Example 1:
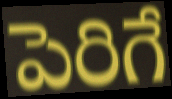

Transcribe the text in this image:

పెరిగే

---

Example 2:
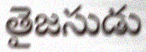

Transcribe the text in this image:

తైజసుడు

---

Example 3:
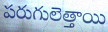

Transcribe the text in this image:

పరుగులెత్తాయి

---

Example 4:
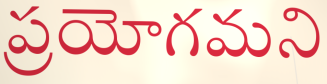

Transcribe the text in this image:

ప్రయోగమని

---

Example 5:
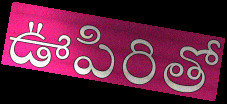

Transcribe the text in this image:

ఊపిరితో